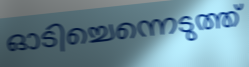
ഓടിച്ചെന്നെടുത്ത്